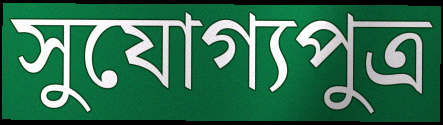
সুযোগ্যপুত্র